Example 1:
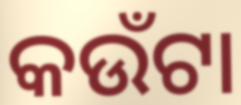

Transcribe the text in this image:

କଉଁଟା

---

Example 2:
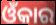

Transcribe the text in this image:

ଓଁକାର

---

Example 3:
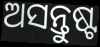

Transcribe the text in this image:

ଅସନ୍ତୁଷ୍ଟ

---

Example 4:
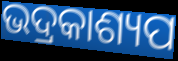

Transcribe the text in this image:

ଭଦ୍ରକାଶ୍ୟପ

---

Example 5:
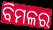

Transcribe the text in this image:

ବିମଳର